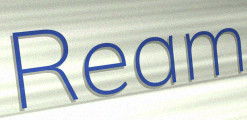
Ream